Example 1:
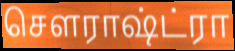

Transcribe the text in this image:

சௌராஷ்ட்ரா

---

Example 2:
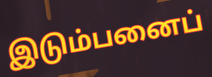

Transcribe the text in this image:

இடும்பனைப்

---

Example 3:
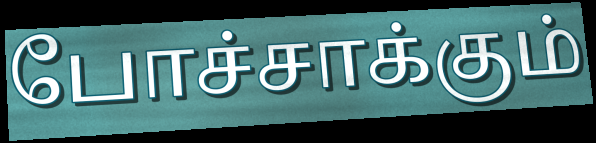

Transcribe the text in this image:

போச்சாக்கும்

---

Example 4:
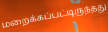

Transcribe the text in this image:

மறைக்கப்பட்டிருந்தது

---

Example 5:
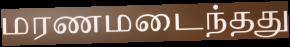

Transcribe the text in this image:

மரணமடைந்தது